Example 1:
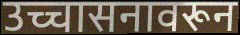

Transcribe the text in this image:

उच्चासनावरून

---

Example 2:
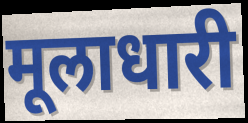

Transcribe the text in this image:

मूलाधारी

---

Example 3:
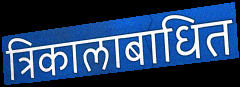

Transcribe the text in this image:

त्रिकालाबाधित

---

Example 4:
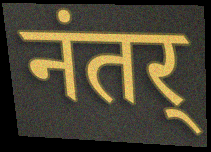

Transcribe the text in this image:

नंतर्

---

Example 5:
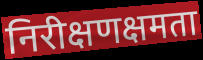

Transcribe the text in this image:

निरीक्षणक्षमता